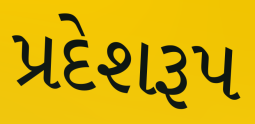
પ્રદેશરૂપ